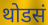
थोडसं